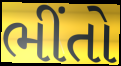
ભીંતો